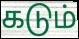
கடும்